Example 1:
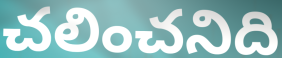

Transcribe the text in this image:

చలించనిది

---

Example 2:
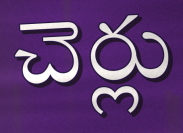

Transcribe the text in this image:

చెర్లు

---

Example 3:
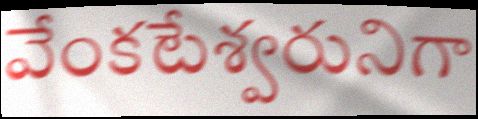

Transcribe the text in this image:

వేంకటేశ్వరునిగా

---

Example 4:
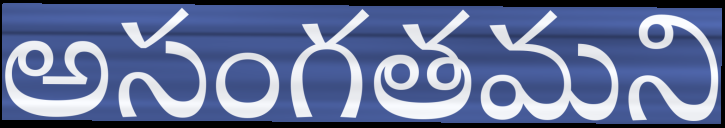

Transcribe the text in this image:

అసంగతమని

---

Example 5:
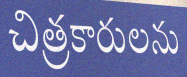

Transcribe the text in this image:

చిత్రకారులను